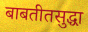
बाबतीतसुद्धा